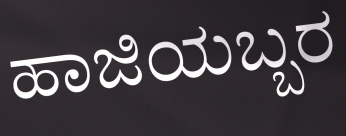
ಹಾಜಿಯಬ್ಬರ